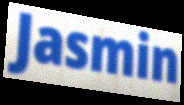
Jasmin